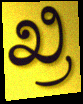
ಖ್ರಿ